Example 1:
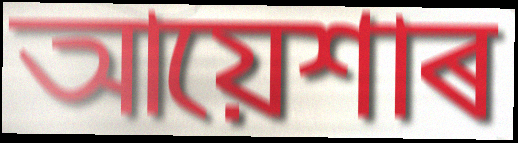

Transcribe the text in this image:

আয়েশাৰ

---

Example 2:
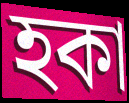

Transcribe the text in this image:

হকা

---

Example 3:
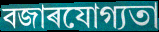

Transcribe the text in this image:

বজাৰযোগ্যতা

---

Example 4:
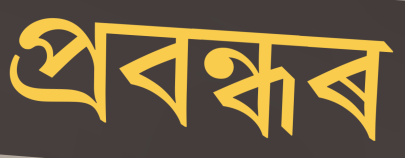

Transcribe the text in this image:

প্ৰবন্ধৰ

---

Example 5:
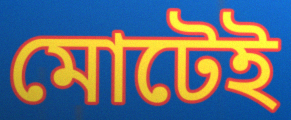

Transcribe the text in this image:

মোটেই